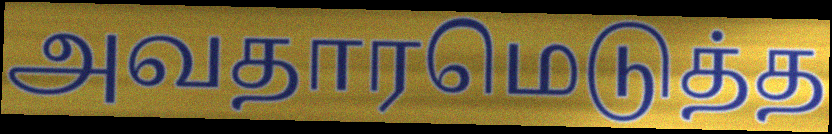
அவதாரமெடுத்த